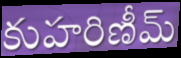
కుహరిణీమ్